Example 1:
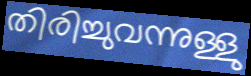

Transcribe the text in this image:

തിരിച്ചുവന്നുള്ളു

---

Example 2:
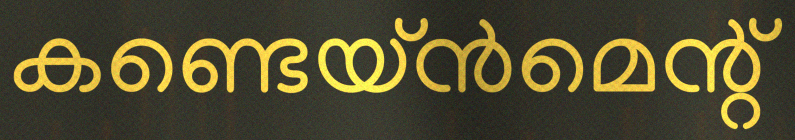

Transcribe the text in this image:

കണ്ടെയ്ൻമെന്റ്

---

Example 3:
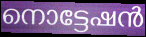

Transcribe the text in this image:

നൊട്ടേഷൻ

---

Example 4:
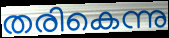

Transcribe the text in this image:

തരികെന്നു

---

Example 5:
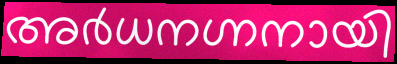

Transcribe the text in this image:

അർധനഗ്നനായി